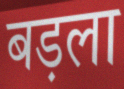
बड़ला